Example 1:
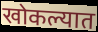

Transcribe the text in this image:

खोकल्यात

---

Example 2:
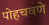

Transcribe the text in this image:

पोहचवणे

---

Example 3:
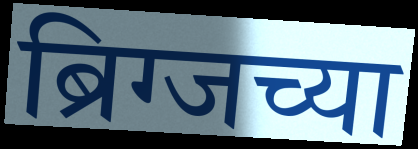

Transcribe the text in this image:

ब्रिग्जच्या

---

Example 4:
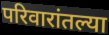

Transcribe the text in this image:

परिवारांतल्या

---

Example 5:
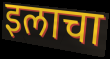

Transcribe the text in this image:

इलाचा